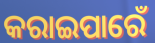
କରାଇପାରେଁ